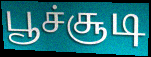
பூச்சூடி